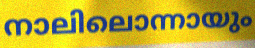
നാലിലൊന്നായും